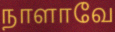
நாளாவே